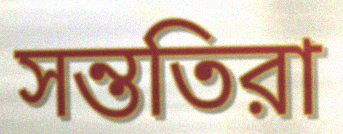
সন্ততিরা